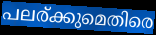
പലര്ക്കുമെതിരെ